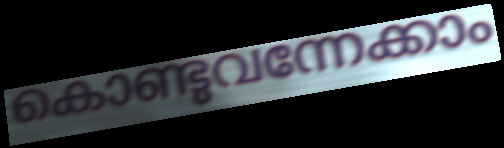
കൊണ്ടുവന്നേക്കാം